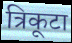
त्रिकूटा